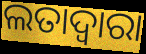
ଲତାଦ୍ୱାରା